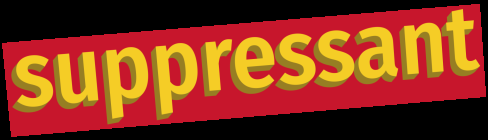
suppressant